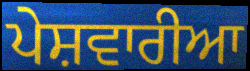
ਪੇਸ਼ਵਾਰੀਆ